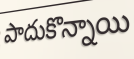
పాదుకొన్నాయి